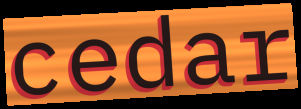
cedar